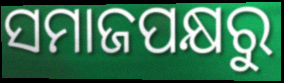
ସମାଜପକ୍ଷରୁ